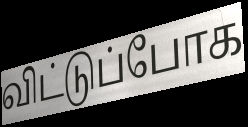
விட்டுப்போக